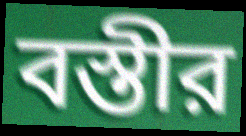
বস্তীর